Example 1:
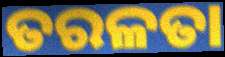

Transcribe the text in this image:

ତରଳତା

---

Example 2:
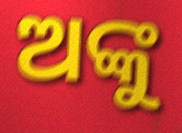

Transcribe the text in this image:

ଅଙ୍କୁ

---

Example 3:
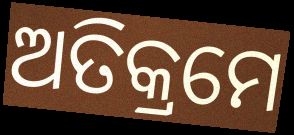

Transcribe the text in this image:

ଅତିକ୍ରମେ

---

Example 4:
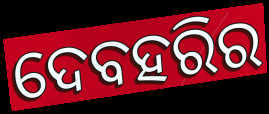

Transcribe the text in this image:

ଦେବହରିର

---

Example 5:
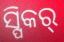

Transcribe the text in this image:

ସ୍ପିକର୍